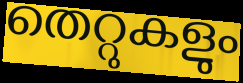
തെറ്റുകളും